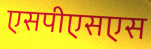
एसपीएसएस